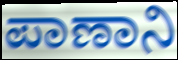
ಪಾಣಾನಿ